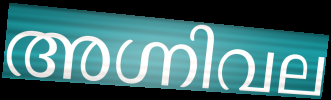
അഗ്നിവല